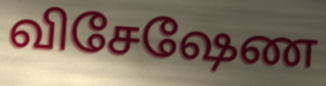
விசேஷேண